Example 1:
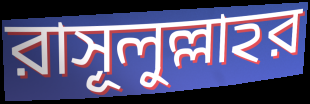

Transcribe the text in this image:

রাসূলুল্লাহর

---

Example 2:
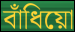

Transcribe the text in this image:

বাঁধিয়ো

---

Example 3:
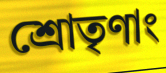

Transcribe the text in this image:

শ্রোতৃণাং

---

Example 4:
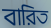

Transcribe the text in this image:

বারিত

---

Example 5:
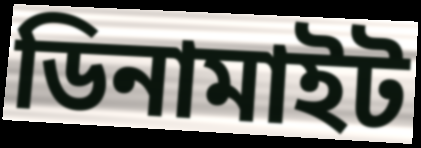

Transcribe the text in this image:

ডিনামাইট